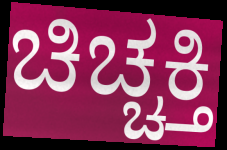
ಚಿಚ್ಚಕ್ತಿ